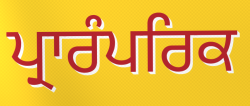
ਪ੍ਰਾਰੰਪਰਿਕ